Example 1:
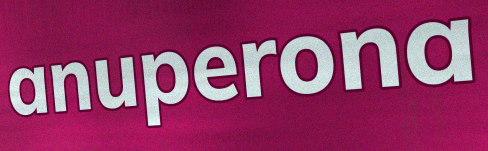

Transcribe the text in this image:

anuperona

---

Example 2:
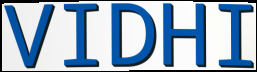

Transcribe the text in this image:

VIDHI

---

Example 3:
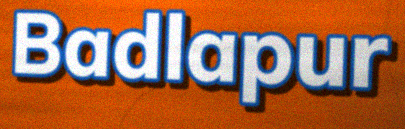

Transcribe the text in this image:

Badlapur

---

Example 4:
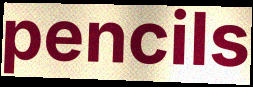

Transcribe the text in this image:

pencils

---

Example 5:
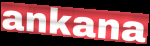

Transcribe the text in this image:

ankana